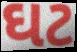
ઘટ